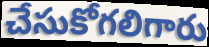
చేసుకోగలిగారు